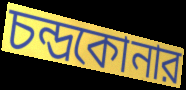
চন্দ্রকোনার